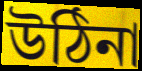
উঠিনা